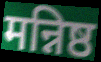
मन्निष्ठ